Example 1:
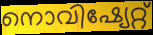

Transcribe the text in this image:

നൊവിഷ്യേറ്റ്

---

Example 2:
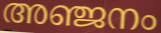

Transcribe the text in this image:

അഞ്ജനം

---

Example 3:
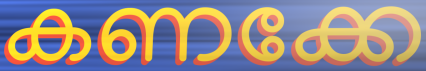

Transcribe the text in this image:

കണക്കേ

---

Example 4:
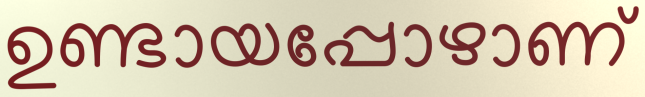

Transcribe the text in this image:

ഉണ്ടായപ്പോഴാണ്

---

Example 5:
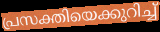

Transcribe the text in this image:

പ്രസക്തിയെക്കുറിച്ച്